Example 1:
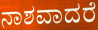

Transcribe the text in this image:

ನಾಶವಾದರೆ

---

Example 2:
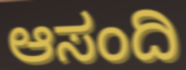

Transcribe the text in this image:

ಆಸಂದಿ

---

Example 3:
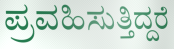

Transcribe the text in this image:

ಪ್ರವಹಿಸುತ್ತಿದ್ದರೆ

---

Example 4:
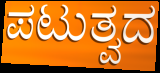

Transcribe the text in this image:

ಪಟುತ್ವದ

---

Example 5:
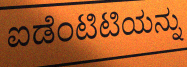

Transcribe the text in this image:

ಐಡೆಂಟಿಟಿಯನ್ನು